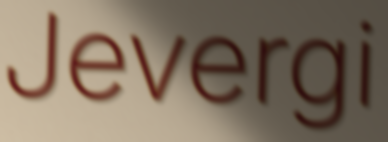
Jevergi